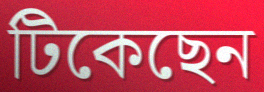
টিকেছেন